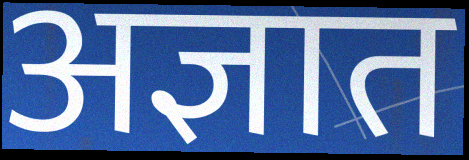
अज्ञात